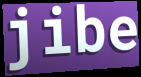
jibe